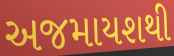
અજમાયશથી